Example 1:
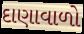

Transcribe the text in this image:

દાણાવાળો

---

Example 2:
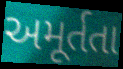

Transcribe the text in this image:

અમૂર્તતા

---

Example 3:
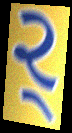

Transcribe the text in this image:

ર્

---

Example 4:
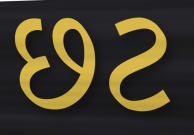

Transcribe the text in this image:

છટ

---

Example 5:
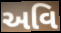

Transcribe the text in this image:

અવિ